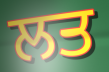
ਲਤ